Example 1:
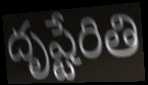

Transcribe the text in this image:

దృష్టేరితి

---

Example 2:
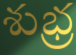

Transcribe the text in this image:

శుభ్ర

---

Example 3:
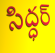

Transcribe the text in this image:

సిద్ధర్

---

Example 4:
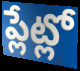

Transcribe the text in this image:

ప్లేట్లో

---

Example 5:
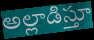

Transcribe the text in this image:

అల్లాడిస్తూ